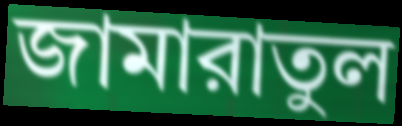
জামারাতুল